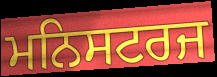
ਮਨਿਸਟਰਜ